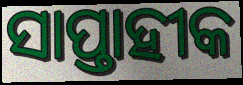
ସାପ୍ତାହୀକ